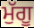
ਮੁੱਗੂ